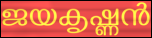
ജയകൃഷ്ണൻ